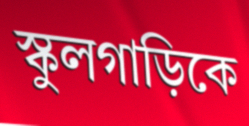
স্কুলগাড়িকে